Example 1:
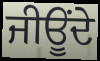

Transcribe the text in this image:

ਜੀਊਂਦੇ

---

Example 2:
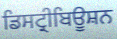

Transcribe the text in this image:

ਡਿਸਟ੍ਰੀਬਿਊਸ਼ਨ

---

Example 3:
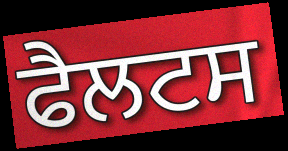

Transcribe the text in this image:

ਫੈਲਟਸ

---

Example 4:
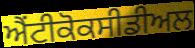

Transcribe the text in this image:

ਐਂਟੀਕੋਕਸੀਡੀਅਲ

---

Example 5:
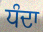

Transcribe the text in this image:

ਧੰਦਾ